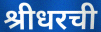
श्रीधरची